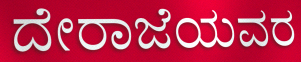
ದೇರಾಜೆಯವರ